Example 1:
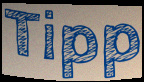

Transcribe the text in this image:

Tipp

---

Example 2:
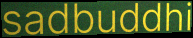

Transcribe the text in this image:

sadbuddhi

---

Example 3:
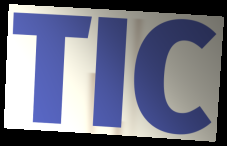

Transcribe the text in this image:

TIC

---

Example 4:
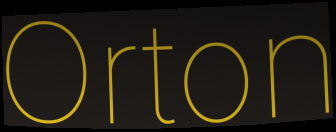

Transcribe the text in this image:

Orton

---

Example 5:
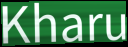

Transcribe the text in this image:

Kharu